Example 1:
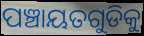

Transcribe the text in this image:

ପଞ୍ଚାୟତଗୁଡିକୁ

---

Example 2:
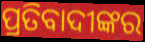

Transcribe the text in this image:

ପ୍ରତିବାଦୀଙ୍କର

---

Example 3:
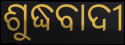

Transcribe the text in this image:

ଶୁଦ୍ଧବାଦୀ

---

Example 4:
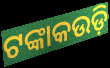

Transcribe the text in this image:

ଟଙ୍କାକଉଡ଼ି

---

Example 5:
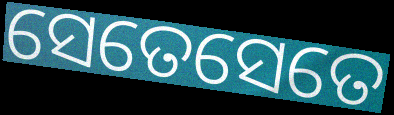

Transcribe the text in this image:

ସେତେସେତେ